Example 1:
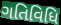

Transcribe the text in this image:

ગતિવિધિ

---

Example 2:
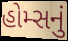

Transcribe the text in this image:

હોમ્સનું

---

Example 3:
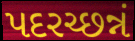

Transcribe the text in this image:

પદરચ્છન્નં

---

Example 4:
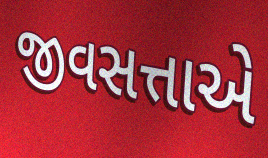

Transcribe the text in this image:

જીવસત્તાએ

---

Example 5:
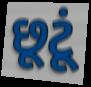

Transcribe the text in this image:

છૂટૂં